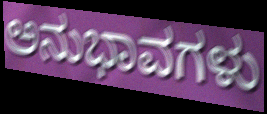
ಅನುಭಾವಗಳು